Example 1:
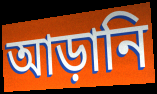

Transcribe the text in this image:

আড়ানি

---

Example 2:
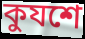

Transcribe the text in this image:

কুযশে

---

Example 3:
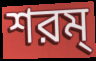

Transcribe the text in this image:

শরম্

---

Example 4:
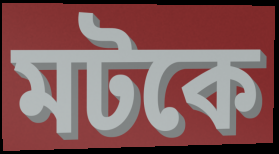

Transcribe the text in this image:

মটকে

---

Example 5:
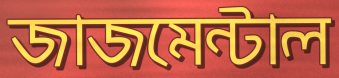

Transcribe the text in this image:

জাজমেন্টাল